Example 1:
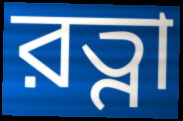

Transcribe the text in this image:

রত্না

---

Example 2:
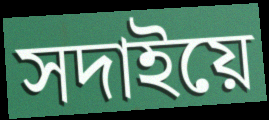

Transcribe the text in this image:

সদাইয়ে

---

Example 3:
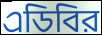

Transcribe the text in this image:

এডিবির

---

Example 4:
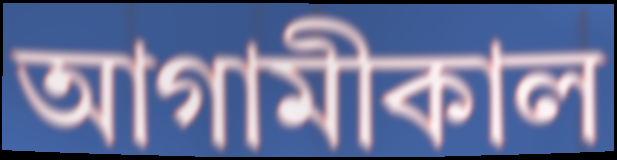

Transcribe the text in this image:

আগামীকাল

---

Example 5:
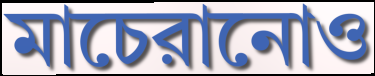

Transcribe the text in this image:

মাচেরানোও